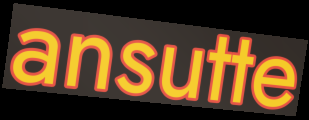
ansutte